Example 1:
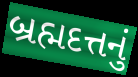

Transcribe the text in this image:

બ્રહ્મદત્તનું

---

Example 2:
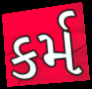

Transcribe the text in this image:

કર્મ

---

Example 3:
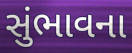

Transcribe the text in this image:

સુંભાવના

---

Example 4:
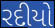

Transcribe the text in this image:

રદીયો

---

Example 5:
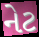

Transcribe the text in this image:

નેટ